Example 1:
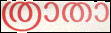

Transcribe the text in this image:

ത്രാതാ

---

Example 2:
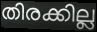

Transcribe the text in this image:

തിരക്കില്ല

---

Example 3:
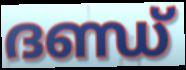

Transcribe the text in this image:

ദണ്ഡ്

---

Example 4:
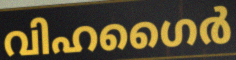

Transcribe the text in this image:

വിഹഗൈർ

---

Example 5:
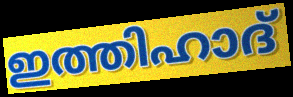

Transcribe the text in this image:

ഇത്തിഹാദ്